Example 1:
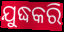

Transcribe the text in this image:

ଯୁଦ୍ଧକରି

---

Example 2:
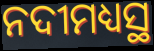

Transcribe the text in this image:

ନଦୀମଧ୍ୟସ୍ଥ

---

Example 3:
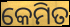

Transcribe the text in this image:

କେମିତ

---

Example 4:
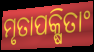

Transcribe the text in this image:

ମୃତାପକ୍ଷିତାଂ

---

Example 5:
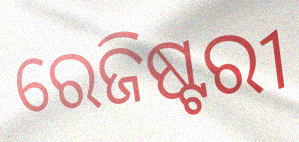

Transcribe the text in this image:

ରେଜିଷ୍ଟରୀ